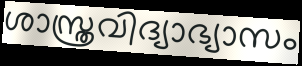
ശാസ്ത്രവിദ്യാഭ്യാസം